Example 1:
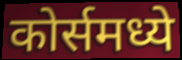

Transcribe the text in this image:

कोर्समध्ये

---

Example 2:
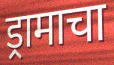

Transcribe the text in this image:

ड्रामाचा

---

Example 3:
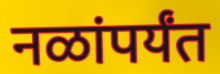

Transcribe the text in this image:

नळांपर्यंत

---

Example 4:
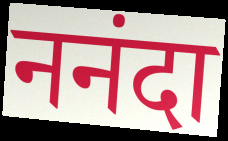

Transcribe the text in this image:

ननंदा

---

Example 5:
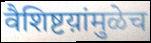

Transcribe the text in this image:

वैशिष्टय़ांमुळेच